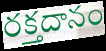
రక్తదానం